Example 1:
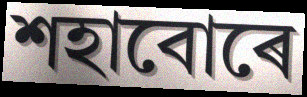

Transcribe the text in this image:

শহাবোৰে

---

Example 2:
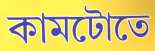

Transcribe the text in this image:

কামটোতে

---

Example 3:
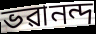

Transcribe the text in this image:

ভৱানন্দ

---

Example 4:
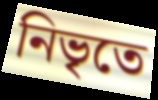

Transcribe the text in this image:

নিভৃতে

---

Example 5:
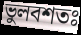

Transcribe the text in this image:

ভুলবশতঃ